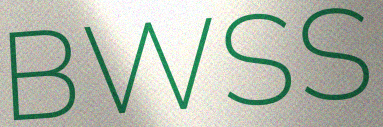
BWSS